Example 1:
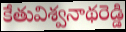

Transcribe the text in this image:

కేతువిశ్వనాథరెడ్డి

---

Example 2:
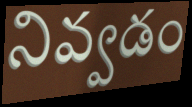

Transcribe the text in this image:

నివ్వడం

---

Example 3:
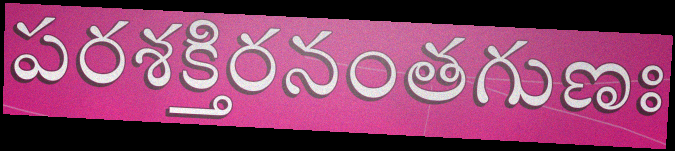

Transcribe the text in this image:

పరశక్తిరనంతగుణః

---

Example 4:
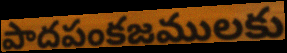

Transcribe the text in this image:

పాదపంకజములకు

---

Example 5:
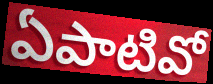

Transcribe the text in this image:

ఏపాటివో